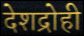
देशद्रोही